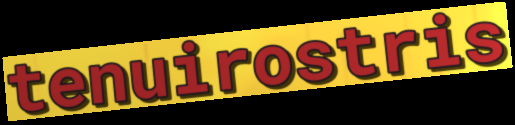
tenuirostris